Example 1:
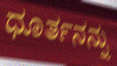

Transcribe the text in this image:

ಧೂರ್ತನನ್ನು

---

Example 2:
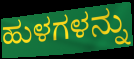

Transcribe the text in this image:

ಹುಳಗಳನ್ನು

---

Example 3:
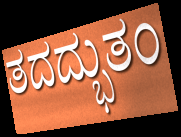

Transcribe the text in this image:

ತದದ್ಭುತಂ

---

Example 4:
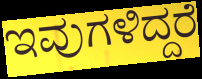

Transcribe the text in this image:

ಇವುಗಳಿದ್ದರೆ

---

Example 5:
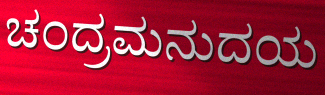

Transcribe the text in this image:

ಚಂದ್ರಮನುದಯ